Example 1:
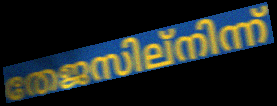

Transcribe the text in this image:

തേജസില്നിന്ന്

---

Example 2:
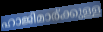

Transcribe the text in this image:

ഹാജിമാര്ക്കുള്ള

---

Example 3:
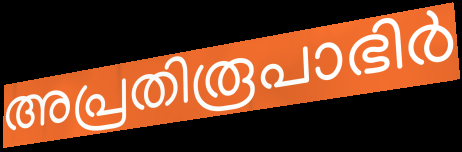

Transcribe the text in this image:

അപ്രതിരൂപാഭിർ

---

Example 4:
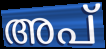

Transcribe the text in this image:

അപ്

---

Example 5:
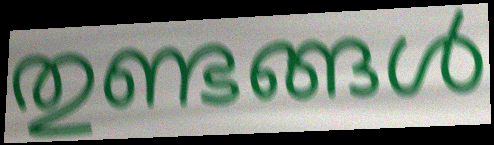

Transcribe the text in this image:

തുണ്ടങ്ങൾ